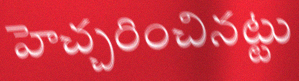
హెచ్చరించినట్టు